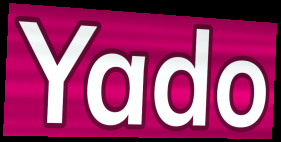
Yado